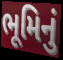
ભૂમિનું